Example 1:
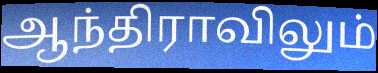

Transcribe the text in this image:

ஆந்திராவிலும்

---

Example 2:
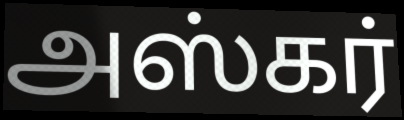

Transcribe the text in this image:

அஸ்கர்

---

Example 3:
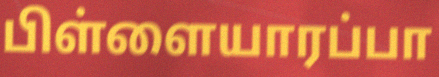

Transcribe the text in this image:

பிள்ளையாரப்பா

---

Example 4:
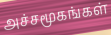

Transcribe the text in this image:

அச்சமூகங்கள்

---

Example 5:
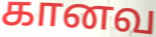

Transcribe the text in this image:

கானவ